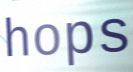
hops